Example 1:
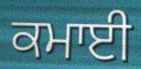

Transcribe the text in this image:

ਕਮਾਈ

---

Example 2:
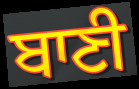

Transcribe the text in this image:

ਬਾਣੀ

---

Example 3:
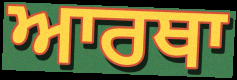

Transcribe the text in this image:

ਆਰਥਾ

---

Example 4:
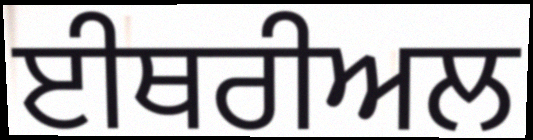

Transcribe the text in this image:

ਈਥਰੀਅਲ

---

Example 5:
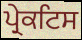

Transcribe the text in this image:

ਪ੍ਰੇਕਟਿਸ